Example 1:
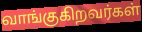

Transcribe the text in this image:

வாங்குகிறவர்கள்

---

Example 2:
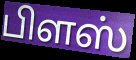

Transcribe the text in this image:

பிளஸ்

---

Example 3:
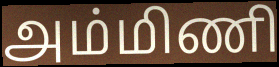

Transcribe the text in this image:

அம்மிணி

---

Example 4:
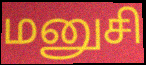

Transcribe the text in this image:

மனுசி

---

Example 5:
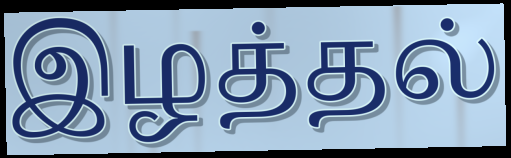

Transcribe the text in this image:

இழத்தல்